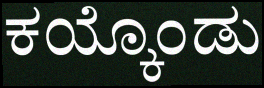
ಕಯ್ಕೊಂಡು